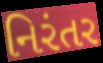
નિરંતર